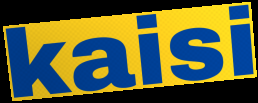
kaisi